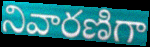
నివారణిగా